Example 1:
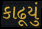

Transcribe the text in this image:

કાઢૂયું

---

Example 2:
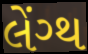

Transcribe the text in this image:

લેંગ્થ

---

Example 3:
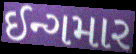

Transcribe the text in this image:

ઈન્ગમાર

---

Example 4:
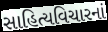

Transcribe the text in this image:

સાહિત્યવિચારનાં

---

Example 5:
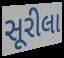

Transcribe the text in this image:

સૂરીલા